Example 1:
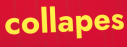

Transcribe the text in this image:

collapes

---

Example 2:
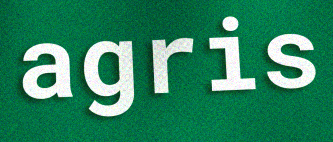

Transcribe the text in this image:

agris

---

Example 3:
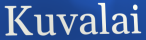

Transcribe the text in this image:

Kuvalai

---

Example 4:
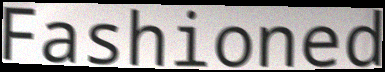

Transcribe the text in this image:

Fashioned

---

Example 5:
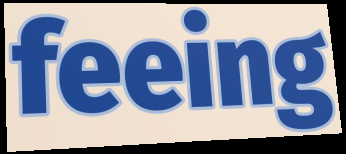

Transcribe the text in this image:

feeing